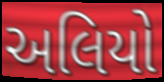
અલિયો